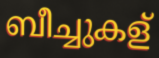
ബീച്ചുകള്